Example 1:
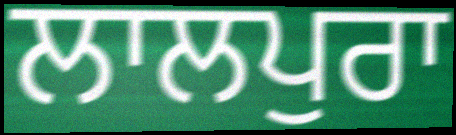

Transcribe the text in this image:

ਲਾਲਪੁਰਾ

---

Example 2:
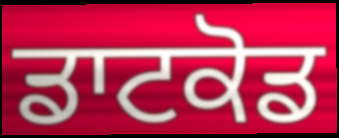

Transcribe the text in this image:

ਡਾਟਕੋਡ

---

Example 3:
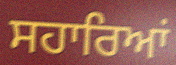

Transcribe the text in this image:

ਸਹਾਰਿਆਂ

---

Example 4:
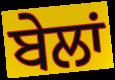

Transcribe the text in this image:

ਬੇਲਾਂ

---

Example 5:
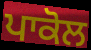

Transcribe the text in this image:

ਪਾਕੋਲ